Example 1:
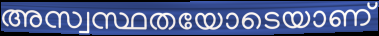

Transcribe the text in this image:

അസ്വസ്ഥതയോടെയാണ്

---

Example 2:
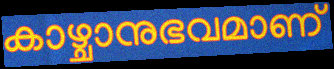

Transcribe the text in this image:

കാഴ്ചാനുഭവമാണ്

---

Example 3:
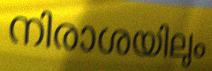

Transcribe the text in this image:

നിരാശയിലും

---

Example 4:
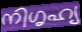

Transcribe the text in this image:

നിഗൃഹ്യ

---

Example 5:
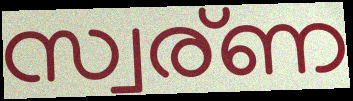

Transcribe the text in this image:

സ്വര്ണ